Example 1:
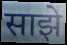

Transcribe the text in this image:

साझे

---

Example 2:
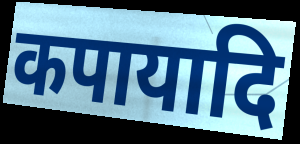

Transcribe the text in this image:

कपायादि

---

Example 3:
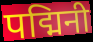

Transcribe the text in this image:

पद्मिनी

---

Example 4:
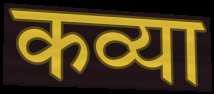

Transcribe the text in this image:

कव्या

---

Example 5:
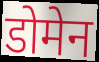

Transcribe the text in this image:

डोमेन